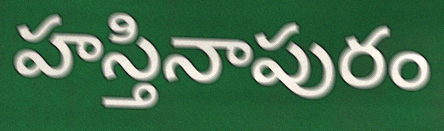
హస్తినాపురం